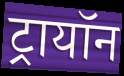
ट्रायॉन